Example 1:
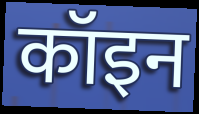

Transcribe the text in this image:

कॉइन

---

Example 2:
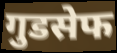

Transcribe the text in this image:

गुडसेफ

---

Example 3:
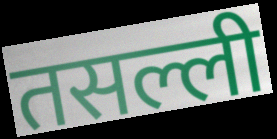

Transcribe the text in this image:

तसल्‍ली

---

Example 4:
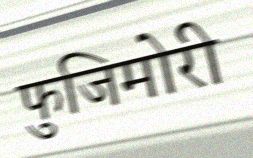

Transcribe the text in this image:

फुजिमोरी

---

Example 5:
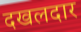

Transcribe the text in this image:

दखलदार